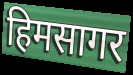
हिमसागर